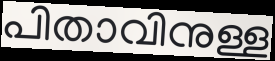
പിതാവിനുള്ള